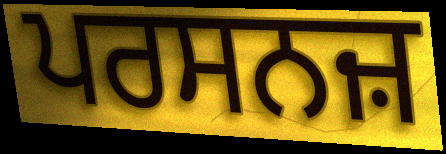
ਪਰਸਨਜ਼